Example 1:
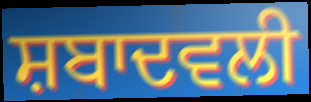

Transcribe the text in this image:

ਸ਼ਬਾਦਵਲੀ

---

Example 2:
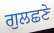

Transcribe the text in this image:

ਗੁਲਛਣੇ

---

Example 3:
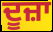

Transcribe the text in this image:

ਦੂਜ਼ਾ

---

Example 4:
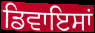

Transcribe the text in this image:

ਡਿਵਾਇਸਾਂ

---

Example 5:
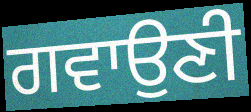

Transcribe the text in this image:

ਗਵਾਉਣੀ